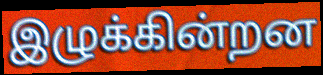
இழுக்கின்றன